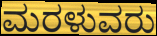
ಮರಳುವರು